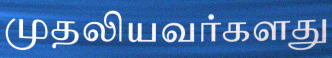
முதலியவர்களது